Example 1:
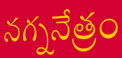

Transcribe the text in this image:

నగ్ననేత్రం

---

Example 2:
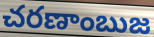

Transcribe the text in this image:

చరణాంబుజ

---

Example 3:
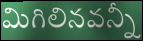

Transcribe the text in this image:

మిగిలినవన్నీ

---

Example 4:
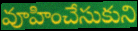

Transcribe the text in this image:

వూహించేసుకుని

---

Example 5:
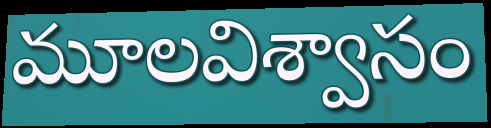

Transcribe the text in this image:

మూలవిశ్వాసం